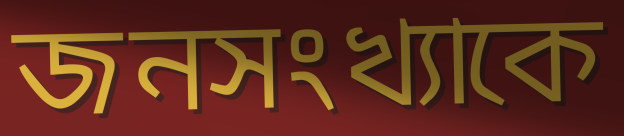
জনসংখ্যাকে